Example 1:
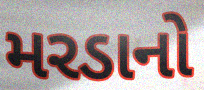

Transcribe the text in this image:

મરડાનો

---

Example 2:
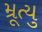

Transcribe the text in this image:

મ્રૂત્યુ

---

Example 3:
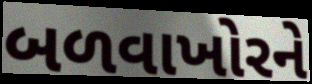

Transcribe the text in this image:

બળવાખોરને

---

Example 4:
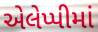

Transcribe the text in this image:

એલેપ્પીમાં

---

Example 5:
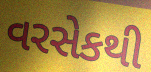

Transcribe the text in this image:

વરસેકથી